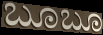
ಬೂಬೂ